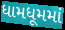
ધામધૂમમાં